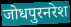
जोधपुरनरेश